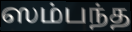
ஸம்பந்த